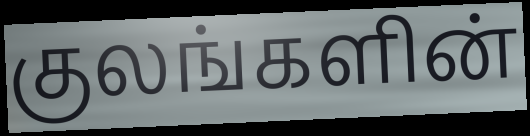
குலங்களின்